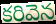
కరివెన